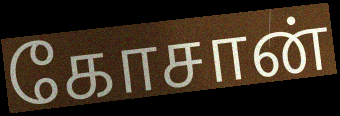
கோசான்